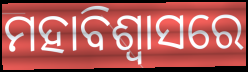
ମହାବିଶ୍ୱାସରେ